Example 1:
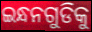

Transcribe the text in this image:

ଇନ୍ଧନଗୁଡିକୁ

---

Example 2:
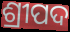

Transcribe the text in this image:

ଶ୍ରୀପଦ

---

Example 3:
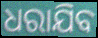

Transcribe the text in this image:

ଧରାଯିବ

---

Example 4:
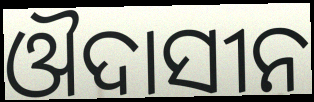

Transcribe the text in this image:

ଔଦାସୀନ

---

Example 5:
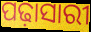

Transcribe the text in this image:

ପଢ଼ାସାରୀ